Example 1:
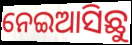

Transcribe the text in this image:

ନେଇଆସିଛୁ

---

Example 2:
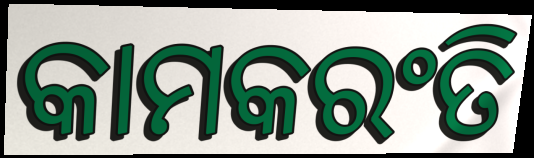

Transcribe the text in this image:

କାମକରଂତି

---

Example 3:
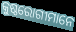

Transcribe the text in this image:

କୁଷ୍ଠରୋଗୀମାନେ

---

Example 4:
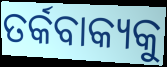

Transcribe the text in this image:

ତର୍କବାକ୍ୟକୁ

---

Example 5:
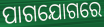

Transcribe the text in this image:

ପାଗଯୋଗରେ